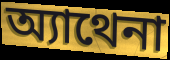
অ্যাথেনা